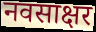
नवसाक्षर